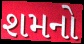
શમનો